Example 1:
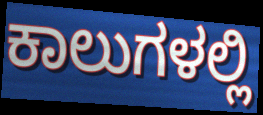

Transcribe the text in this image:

ಕಾಲುಗಳಲ್ಲಿ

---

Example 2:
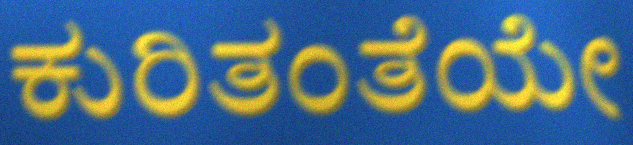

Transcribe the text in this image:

ಕುರಿತಂತೆಯೇ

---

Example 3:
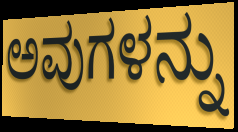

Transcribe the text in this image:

ಅವುಗಳನ್ನು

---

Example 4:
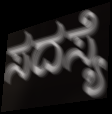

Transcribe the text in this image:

ಸದಸ್ಯೆ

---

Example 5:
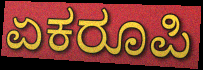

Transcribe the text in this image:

ಏಕರೂಪಿ